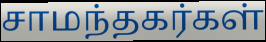
சாமந்தகர்கள்